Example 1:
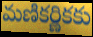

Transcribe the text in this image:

మణికర్ణికకు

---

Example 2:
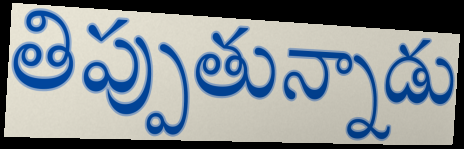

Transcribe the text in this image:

తిప్పుతున్నాడు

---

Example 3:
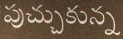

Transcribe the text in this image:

పుచ్చుకున్న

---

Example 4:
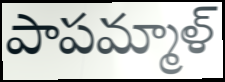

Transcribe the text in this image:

పాపమ్మాళ్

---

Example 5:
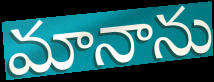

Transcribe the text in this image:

మానాను